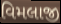
વિમલાજી